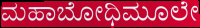
ಮಹಾಬೋಧಿಮೂಲೇ